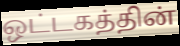
ஒட்டகத்தின்